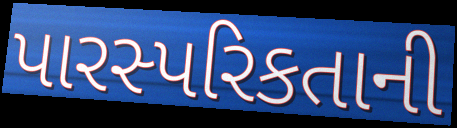
પારસ્પરિકતાની